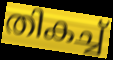
തികച്ച്